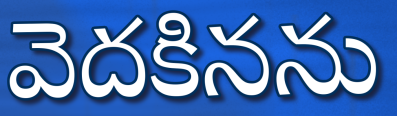
వెదకినను